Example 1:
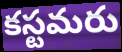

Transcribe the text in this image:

కస్టమరు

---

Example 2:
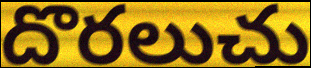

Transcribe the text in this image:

దొరలుచు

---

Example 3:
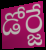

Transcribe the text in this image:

డోర్జే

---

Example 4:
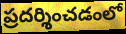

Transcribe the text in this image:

ప్రదర్శించడంలో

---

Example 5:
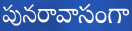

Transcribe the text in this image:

పునరావాసంగా